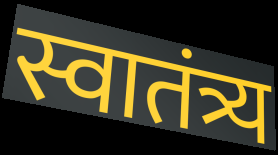
स्‍वातंत्र्य